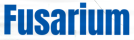
Fusarium